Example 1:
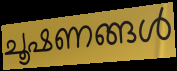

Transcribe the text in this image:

ചൂഷണങ്ങൾ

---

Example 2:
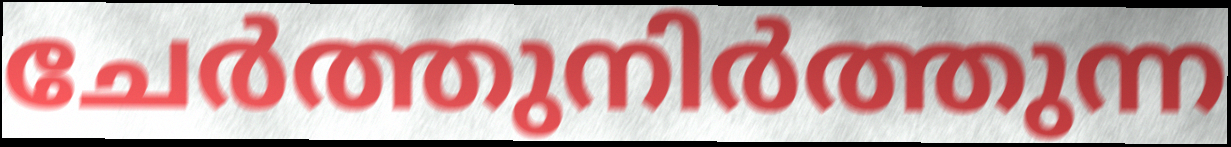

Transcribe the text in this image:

ചേർത്തുനിർത്തുന്ന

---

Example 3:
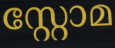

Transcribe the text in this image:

സ്റ്റോമ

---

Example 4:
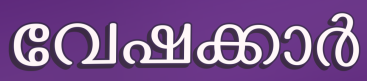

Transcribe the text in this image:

വേഷക്കാർ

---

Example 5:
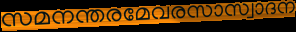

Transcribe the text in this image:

സമനന്തരമേവരസാസ്വാദന